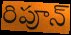
రిపూన్